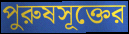
পুরুষসূক্তের